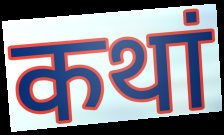
कथां